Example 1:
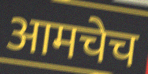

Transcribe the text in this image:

आमचेच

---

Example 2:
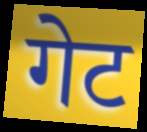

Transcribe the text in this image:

गेट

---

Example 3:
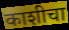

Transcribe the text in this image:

काशीचा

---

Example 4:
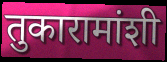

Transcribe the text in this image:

तुकारामांशी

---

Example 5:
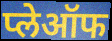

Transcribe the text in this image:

प्लेऑफ